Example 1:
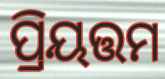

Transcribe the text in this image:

ପ୍ରିୟତ୍ତମ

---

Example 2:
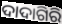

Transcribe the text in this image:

ଦାଦାଗିରି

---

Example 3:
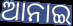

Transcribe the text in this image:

ଆନାଇ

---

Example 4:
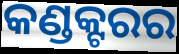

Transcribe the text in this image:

କଣ୍ଡକ୍ଟରର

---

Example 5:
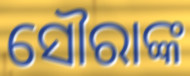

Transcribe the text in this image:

ସୌରାଙ୍କ